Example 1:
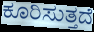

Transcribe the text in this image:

ಕೂರಿಸುತ್ತದೆ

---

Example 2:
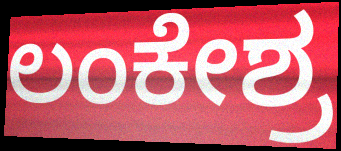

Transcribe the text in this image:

ಲಂಕೇಶ್ರ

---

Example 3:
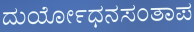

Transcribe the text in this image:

ದುರ್ಯೋಧನಸಂತಾಪ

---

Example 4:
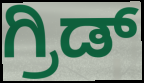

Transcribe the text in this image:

ಗ್ರಿಡ್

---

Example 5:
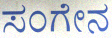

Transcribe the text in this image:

ಸಂಗೇನ